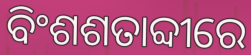
ବିଂଶଶତାବ୍ଦୀରେ